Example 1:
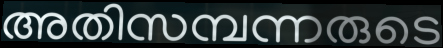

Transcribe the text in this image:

അതിസമ്പന്നരുടെ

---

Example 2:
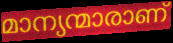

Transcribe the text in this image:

മാന്യന്മാരാണ്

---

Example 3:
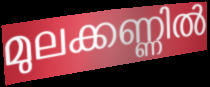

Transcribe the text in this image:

മുലക്കണ്ണിൽ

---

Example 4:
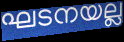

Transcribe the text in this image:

ഘടനയല്ല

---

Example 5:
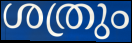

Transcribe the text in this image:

ശത്രും